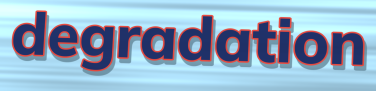
degradation